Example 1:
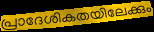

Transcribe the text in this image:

പ്രാദേശികതയിലേക്കും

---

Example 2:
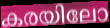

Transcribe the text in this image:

കരയിലോ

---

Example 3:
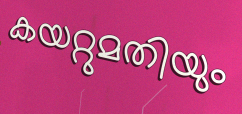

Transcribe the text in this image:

കയറ്റുമതിയും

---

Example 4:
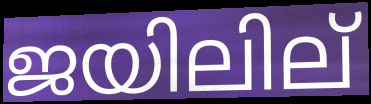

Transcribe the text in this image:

ജയിലില്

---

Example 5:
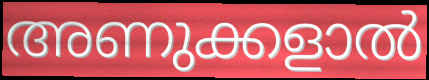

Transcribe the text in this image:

അണുക്കളാൽ